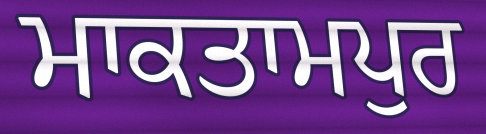
ਮਾਕਤਾਮਪੁਰ